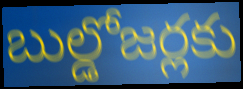
బుల్డోజర్లకు